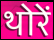
थोरें